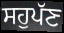
ਸਹੁਪੱਣ